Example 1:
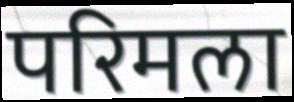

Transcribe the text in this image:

परिमला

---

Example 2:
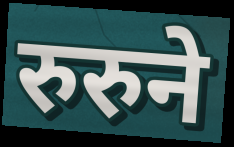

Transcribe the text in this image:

रुरुने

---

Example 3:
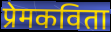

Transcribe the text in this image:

प्रेमकविता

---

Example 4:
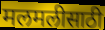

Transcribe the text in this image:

मलमलीसाठी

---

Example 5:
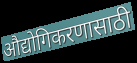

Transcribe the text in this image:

औद्योगिकरणासाठी